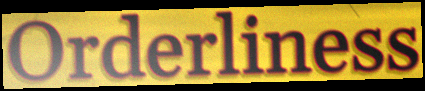
Orderliness